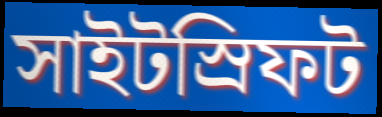
সাইটস্রিফট